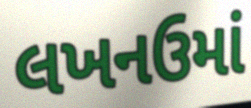
લખનઉમાં